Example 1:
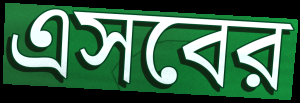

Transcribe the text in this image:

এসবের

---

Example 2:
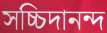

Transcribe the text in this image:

সচ্চিদানন্দ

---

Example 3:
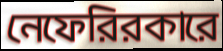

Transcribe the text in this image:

নেফেরিরকারে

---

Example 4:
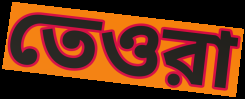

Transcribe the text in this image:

তেওরা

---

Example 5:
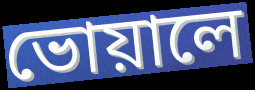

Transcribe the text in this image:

ভোয়ালে